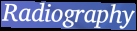
Radiography